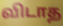
விடாத